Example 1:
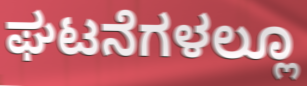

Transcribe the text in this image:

ಘಟನೆಗಳಲ್ಲೂ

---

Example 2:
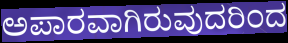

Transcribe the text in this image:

ಅಪಾರವಾಗಿರುವುದರಿಂದ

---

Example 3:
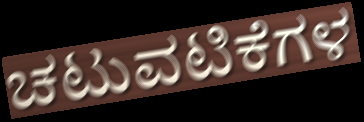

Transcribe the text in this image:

ಚಟುವಟಿಕೆಗಳ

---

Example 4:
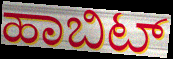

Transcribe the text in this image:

ಹಾಬಿಟ್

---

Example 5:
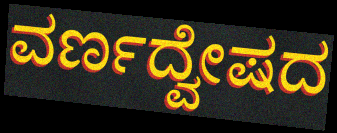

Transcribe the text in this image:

ವರ್ಣದ್ವೇಷದ